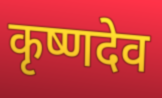
कृष्णदेव